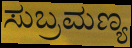
ಸುಬ್ರಮಣ್ಯ